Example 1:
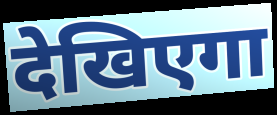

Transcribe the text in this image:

देखिएगा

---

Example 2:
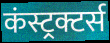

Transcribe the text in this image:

कंस्ट्रक्टर्स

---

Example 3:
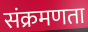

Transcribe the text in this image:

संक्रमणता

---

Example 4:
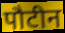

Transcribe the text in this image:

पौटीन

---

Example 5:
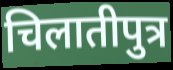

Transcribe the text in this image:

चिलातीपुत्र